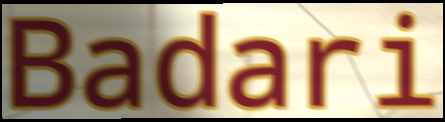
Badari